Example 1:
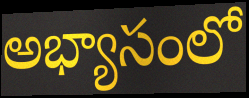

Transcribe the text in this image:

అభ్యాసంలో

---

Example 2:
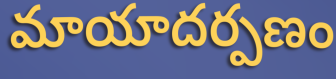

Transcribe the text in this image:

మాయాదర్పణం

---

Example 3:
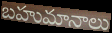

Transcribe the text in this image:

బహుమానాలు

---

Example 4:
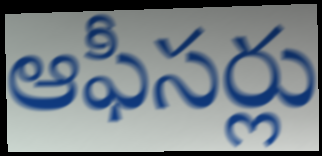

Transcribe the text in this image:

ఆఫీసర్లు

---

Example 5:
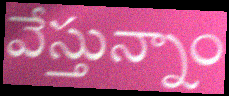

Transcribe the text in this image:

వేస్తున్నాం